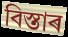
বিস্তাৰ